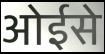
ओईसे